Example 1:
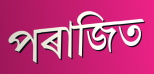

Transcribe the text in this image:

পৰাজিত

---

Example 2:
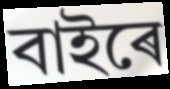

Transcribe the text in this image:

বাইৰে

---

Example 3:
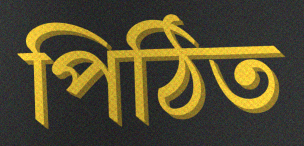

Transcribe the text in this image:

পিঠিত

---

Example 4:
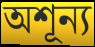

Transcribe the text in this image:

অশূন্য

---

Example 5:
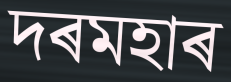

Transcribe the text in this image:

দৰমহাৰ